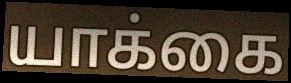
யாக்கை